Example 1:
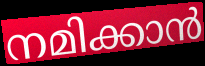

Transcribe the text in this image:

നമിക്കാൻ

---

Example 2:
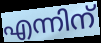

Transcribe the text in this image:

എന്നിന്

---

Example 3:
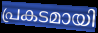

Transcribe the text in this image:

പ്രകടമായി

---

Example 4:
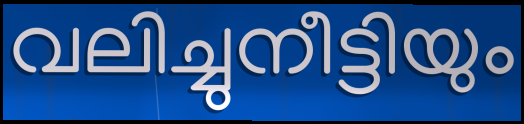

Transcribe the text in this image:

വലിച്ചുനീട്ടിയും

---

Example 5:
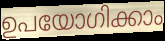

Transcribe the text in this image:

ഉപയോഗിക്കാം